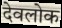
देवलोक